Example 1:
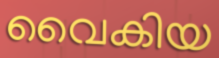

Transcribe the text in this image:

വൈകിയ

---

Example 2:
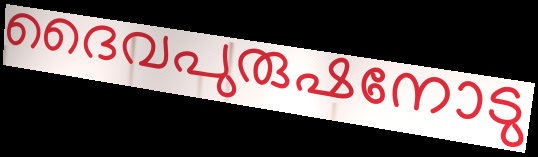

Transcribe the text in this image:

ദൈവപുരുഷനോടു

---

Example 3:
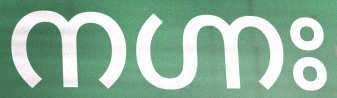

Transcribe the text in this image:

നഗ്നഃ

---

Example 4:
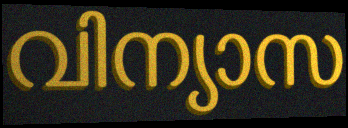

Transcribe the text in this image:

വിന്യാസ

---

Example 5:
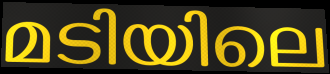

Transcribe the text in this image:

മടിയിലെ